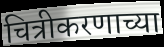
चित्रीकरणाच्या